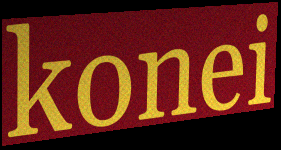
konei